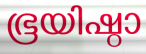
ഭൂയിഷ്ഠാ